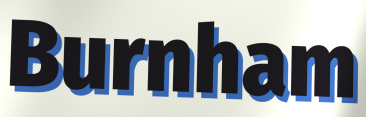
Burnham